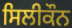
ਸਿਲੀਕੌਨ